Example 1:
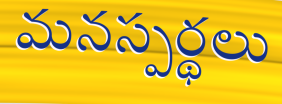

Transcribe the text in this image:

మనస్పర్థలు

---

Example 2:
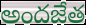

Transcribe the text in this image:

అందజేత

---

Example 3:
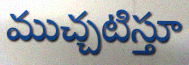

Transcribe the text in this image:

ముచ్చటిస్తూ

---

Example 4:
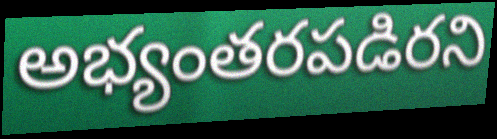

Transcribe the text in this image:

అభ్యంతరపడిరని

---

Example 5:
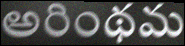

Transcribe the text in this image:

అరింథమ